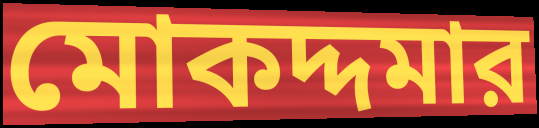
মোকদ্দমার